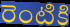
రెంటికి